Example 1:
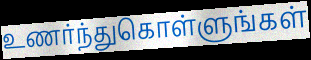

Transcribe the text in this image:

உணர்ந்துகொள்ளுங்கள்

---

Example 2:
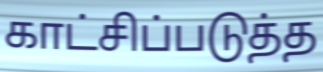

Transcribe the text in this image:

காட்சிப்படுத்த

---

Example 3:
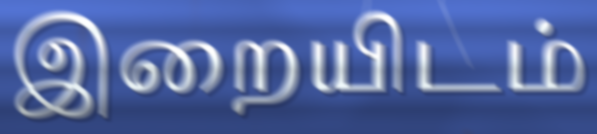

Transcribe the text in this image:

இறையிடம்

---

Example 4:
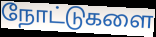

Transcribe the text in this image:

நோட்டுகளை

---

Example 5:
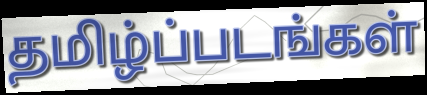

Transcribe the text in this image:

தமிழ்ப்படங்கள்